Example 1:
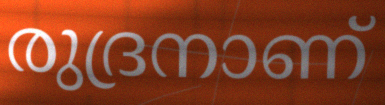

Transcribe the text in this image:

രുദ്രനാണ്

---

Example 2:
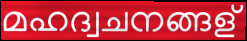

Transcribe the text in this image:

മഹദ്വചനങ്ങള്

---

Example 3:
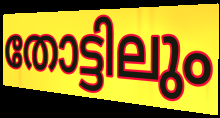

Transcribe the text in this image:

തോട്ടിലും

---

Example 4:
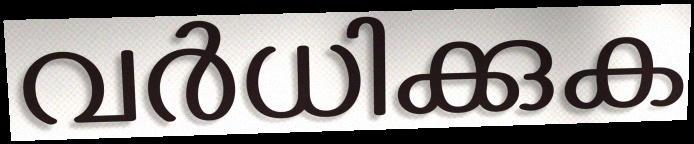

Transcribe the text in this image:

വർധിക്കുക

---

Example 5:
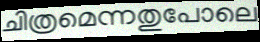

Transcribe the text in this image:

ചിത്രമെന്നതുപോലെ